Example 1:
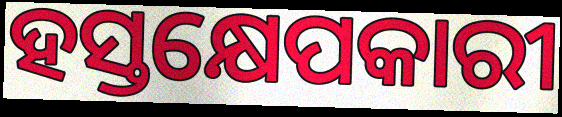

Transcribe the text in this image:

ହସ୍ତକ୍ଷେପକାରୀ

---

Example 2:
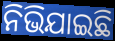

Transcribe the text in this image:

ନିଭିଯାଇଛି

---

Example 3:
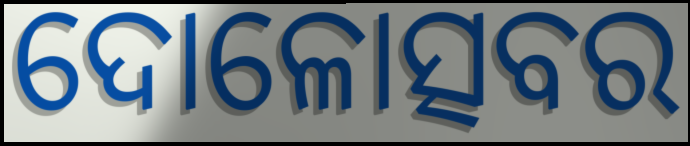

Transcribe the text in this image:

ଦୋଳୋତ୍ସବର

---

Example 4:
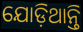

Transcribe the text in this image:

ଯୋଡ଼ିଥାନ୍ତି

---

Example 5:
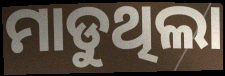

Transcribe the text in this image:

ମାଡୁଥିଲା